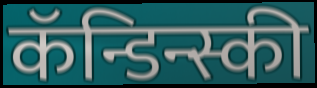
कॅन्डिन्स्की